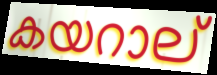
കയറാല്